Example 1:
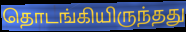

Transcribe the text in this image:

தொடங்கியிருந்தது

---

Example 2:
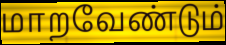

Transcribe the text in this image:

மாறவேண்டும்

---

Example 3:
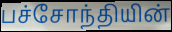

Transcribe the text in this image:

பச்சோந்தியின்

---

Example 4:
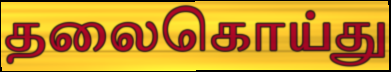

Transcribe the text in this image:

தலைகொய்து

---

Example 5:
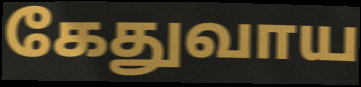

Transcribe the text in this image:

கேதுவாய